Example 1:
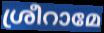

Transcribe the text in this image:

ശ്രീറാമേ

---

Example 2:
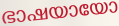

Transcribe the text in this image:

ഭാഷയായോ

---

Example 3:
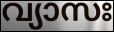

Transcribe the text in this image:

വ്യാസഃ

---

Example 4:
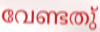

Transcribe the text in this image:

വേണ്ടതു്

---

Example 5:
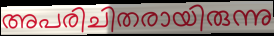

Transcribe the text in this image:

അപരിചിതരായിരുന്നു